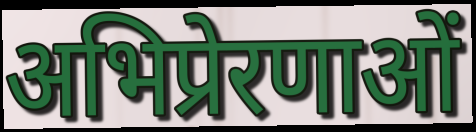
अभिप्रेरणाओं